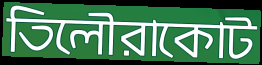
তিলৌরাকোট